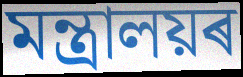
মন্ত্ৰালয়ৰ